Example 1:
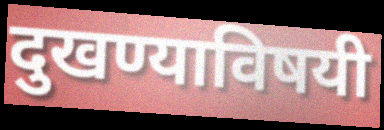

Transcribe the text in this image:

दुखण्याविषयी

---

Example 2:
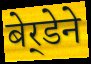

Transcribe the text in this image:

बेर्डेने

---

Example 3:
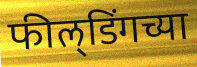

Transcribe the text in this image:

फील्डिंगच्या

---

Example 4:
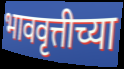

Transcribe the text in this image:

भाववृत्तीच्या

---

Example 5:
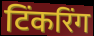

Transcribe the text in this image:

टिंकरिंग